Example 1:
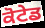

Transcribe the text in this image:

ਕੋਟੇਡ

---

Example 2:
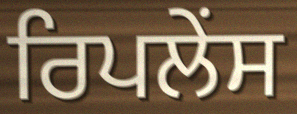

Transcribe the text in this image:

ਰਿਪਲੇਂਸ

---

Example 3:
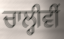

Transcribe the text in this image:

ਚਾਲ੍ਹੀਵੀਂ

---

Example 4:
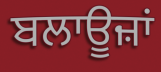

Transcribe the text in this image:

ਬਲਾਊਜ਼ਾਂ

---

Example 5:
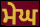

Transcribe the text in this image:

ਮੇਘ